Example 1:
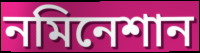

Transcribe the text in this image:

নমিনেশান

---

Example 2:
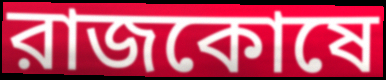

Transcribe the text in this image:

রাজকোষে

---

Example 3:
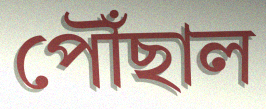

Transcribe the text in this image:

পৌঁছাল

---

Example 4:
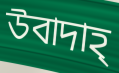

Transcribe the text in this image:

উবাদাহ্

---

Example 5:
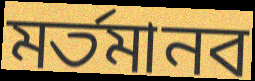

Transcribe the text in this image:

মর্তমানব